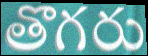
తొగరు